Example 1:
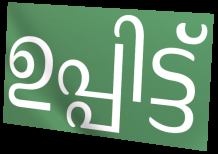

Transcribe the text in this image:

ഉപ്പിട്ട്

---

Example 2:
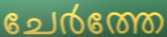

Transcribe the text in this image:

ചേർത്തേ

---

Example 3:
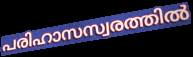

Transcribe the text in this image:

പരിഹാസസ്വരത്തിൽ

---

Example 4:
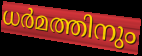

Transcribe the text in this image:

ധർമത്തിനും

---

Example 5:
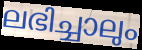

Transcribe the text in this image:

ലഭിച്ചാലും